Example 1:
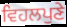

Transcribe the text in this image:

ਵਿਹਲਪੁਣੇ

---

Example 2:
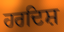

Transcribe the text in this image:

ਹਰਦਿਸ਼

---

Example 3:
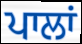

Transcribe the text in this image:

ਪਾਲਾਂ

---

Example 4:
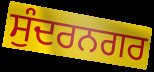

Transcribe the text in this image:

ਸੁੰਦਰਨਗਰ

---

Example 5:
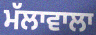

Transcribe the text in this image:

ਮੱਲਾਵਾਲਾ